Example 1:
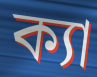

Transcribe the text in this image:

ক্যা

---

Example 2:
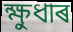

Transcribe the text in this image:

ক্ষুধাৰ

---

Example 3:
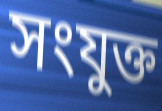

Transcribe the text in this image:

সংযুক্ত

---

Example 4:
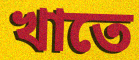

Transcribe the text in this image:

খাতে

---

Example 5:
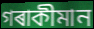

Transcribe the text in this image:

গৰাকীমান